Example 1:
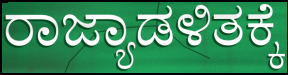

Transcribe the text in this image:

ರಾಜ್ಯಾಡಳಿತಕ್ಕೆ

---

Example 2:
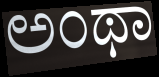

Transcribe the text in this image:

ಅಂಥಾ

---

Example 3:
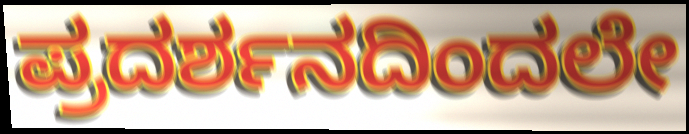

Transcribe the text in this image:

ಪ್ರದರ್ಶನದಿಂದಲೇ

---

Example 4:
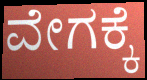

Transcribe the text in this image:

ವೇಗಕ್ಕೆ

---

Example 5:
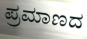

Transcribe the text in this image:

ಪ್ರಮಾಣದ